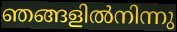
ഞങ്ങളിൽനിന്നു